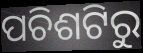
ପଚିଶଟିରୁ